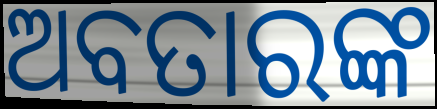
ଅବତାରଙ୍କ